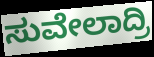
ಸುವೇಲಾದ್ರಿ